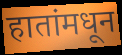
हातांमधून